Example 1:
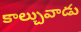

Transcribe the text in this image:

కాల్చువాడు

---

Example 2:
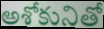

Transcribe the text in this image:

అశోకునితో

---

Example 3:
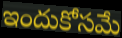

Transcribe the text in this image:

ఇందుకోసమే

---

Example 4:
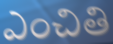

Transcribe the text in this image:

ఎంచితి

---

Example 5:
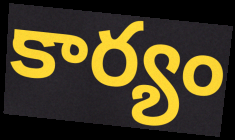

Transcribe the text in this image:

కార్యం